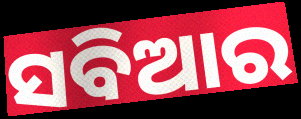
ସବିଆର